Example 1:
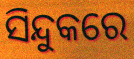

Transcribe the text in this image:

ସିନ୍ଦୁକରେ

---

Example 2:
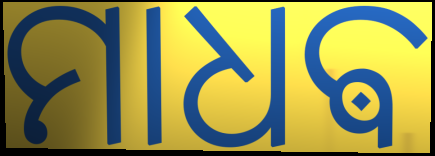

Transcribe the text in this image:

ମାଧଵ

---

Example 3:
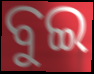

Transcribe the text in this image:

ବୁଇ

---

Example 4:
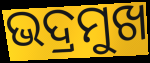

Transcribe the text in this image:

ଭଦ୍ରମୁଖ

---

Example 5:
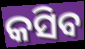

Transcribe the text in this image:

କସିବ